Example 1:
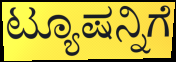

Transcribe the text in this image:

ಟ್ಯೂಷನ್ನಿಗೆ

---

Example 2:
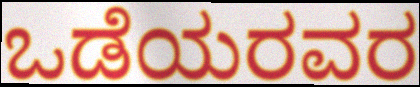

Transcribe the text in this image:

ಒಡೆಯರವರ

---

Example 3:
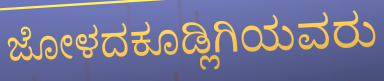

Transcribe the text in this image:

ಜೋಳದಕೂಡ್ಲಿಗಿಯವರು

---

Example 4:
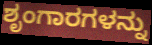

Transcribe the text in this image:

ಶೃಂಗಾರಗಳನ್ನು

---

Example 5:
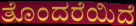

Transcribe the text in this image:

ತೊಂದರೆಯಿದೆ